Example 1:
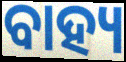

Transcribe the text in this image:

ବାହ୍ୟ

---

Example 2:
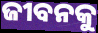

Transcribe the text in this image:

ଜୀବନକୁ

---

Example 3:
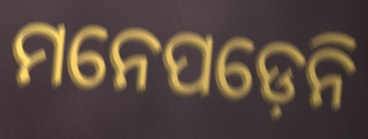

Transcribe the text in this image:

ମନେପଡ଼େନି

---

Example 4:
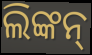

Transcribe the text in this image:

ଲିଙ୍କନ୍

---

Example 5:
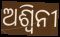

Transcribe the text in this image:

ଅଶ୍ୱିନୀ